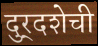
दुर्दशेची